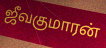
ஜீவகுமாரன்